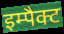
इम्पैक्ट